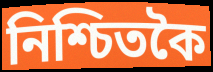
নিশ্চিতকৈ